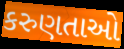
કરુણતાઓ